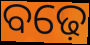
ବଢ଼େ